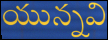
యున్నవి